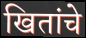
खितांचे